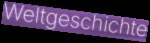
Weltgeschichte